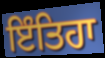
ਇੰਤਿਹਾ